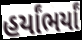
હર્યાંભર્યાં